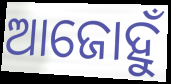
ଆଜୋହୁଁ